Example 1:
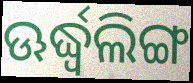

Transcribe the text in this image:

ଊର୍ଦ୍ଧ୍ୱଲିଙ୍ଗ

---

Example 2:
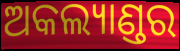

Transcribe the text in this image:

ଅକଲ୍ୟାଣ୍ଡର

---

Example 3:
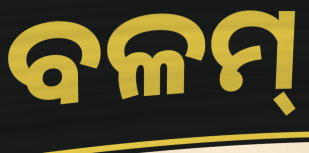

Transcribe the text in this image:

ବଳମ୍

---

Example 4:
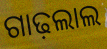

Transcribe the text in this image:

ଗାଢ଼ଲାଲ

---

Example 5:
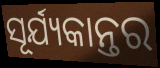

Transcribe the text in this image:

ସୂର୍ଯ୍ୟକାନ୍ତର